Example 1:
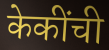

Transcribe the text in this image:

केकींची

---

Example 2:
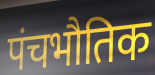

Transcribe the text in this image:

पंचभौतिक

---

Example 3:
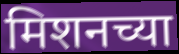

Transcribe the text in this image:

मिशनच्या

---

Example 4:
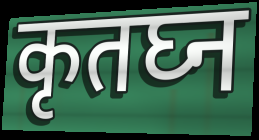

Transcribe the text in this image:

कृतघ्न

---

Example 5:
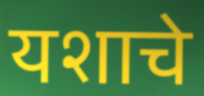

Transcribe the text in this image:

यशाचे